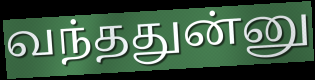
வந்ததுன்னு